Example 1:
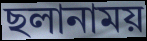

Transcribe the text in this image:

ছলানাময়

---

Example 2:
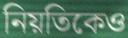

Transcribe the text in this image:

নিয়তিকেও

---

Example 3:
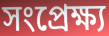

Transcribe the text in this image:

সংপ্রেক্ষ্য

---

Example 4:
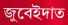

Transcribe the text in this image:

জুবেইদাত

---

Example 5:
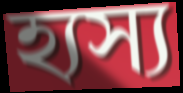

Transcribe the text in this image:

হ্যস্য